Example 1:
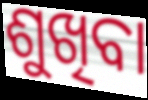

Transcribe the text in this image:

ଶୁଖିବା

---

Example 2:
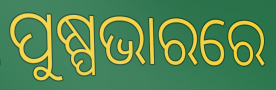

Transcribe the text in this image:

ପୁଷ୍ପଭାରରେ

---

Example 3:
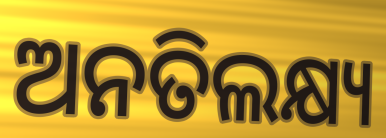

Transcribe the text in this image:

ଅନତିଲକ୍ଷ୍ୟ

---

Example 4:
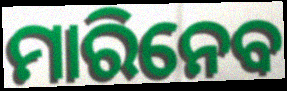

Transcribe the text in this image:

ମାରିନେବ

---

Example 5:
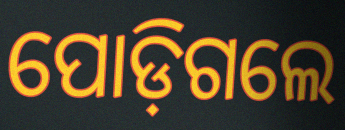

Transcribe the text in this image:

ପୋଡ଼ିଗଲେ